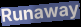
Runaway